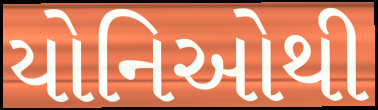
યોનિઓથી